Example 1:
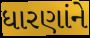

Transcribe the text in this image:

ધારણાંને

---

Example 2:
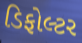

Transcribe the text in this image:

ડિફોલ્ટર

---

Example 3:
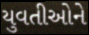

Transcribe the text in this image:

યુવતીઓને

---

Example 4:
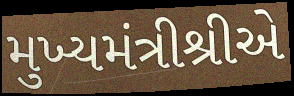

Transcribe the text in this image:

મુખ્યમંત્રીશ્રીએ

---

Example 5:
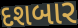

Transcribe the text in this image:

દશબાર